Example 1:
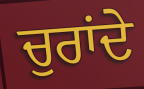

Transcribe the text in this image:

ਚੁਰਾਂਦੇ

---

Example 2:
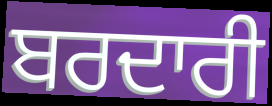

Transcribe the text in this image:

ਬਰਦਾਰੀ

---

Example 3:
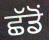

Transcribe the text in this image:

ਛੱਡੋਂ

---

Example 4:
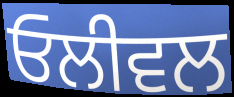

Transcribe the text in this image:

ਓਲੀਵਲ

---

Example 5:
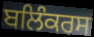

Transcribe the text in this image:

ਬਲਿੰਕਰਸ